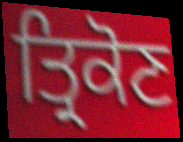
ਤ੍ਰਿਕੋਣ